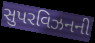
સુપરવિઝનની